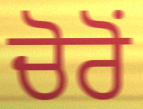
ਚੋਰੋਂ